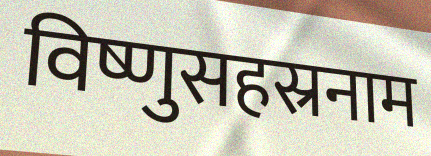
विष्णुसहस्रनाम